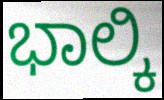
ಭಾಲ್ಕಿ